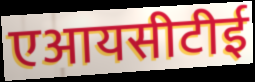
एआयसीटीई